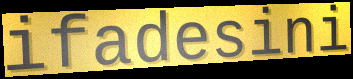
ifadesini